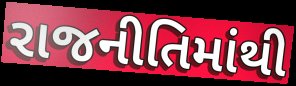
રાજનીતિમાંથી